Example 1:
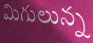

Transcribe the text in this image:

మిగులున్న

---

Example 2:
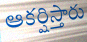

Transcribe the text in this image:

ఆకర్షిస్తారు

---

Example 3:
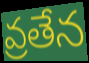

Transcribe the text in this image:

వ్రతేన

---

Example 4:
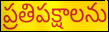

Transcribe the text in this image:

ప్రతిపక్షాలను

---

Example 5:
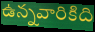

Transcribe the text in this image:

ఉన్నవారికిది